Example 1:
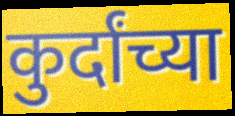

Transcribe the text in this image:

कुर्दांच्या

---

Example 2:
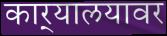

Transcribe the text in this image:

कार्यालयावर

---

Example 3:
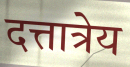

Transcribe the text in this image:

दत्तात्रेय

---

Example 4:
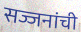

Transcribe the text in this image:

सज्जनांची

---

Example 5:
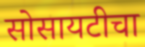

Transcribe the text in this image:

सोसायटीचा